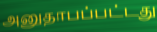
அனுதாபப்பட்டது